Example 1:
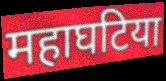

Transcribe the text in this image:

महाघटिया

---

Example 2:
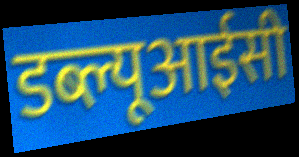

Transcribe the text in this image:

डब्ल्यूआईसी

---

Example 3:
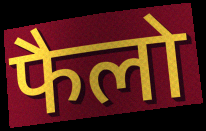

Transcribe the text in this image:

फैलो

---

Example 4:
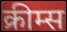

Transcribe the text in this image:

क्रीम्‍स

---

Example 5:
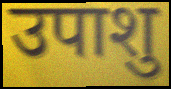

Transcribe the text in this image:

उपाशु